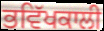
ਭਵਿੱਖਕਾਲੀ